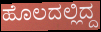
ಹೊಲದಲ್ಲಿದ್ದ